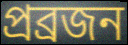
প্রব্রজন